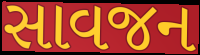
સાવજન